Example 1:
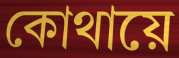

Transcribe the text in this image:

কোথায়ে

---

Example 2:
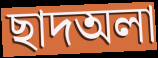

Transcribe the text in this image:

ছাদঅলা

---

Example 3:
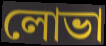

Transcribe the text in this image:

লোভা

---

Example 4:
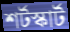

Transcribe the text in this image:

শর্টস্কার্ট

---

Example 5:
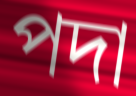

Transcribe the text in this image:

পদা